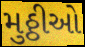
મુઠ્ઠીઓ